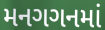
મનગગનમાં